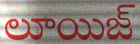
లూయిజ్